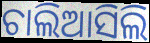
ଚାଲିଆସିଲି